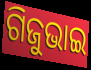
ଗିଜୁଭାଇ